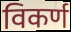
विकर्ण